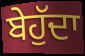
ਬੇਹੁੱਦਾ